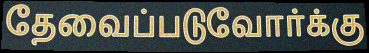
தேவைப்படுவோர்க்கு